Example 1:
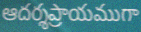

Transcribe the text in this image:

ఆదర్శప్రాయముగా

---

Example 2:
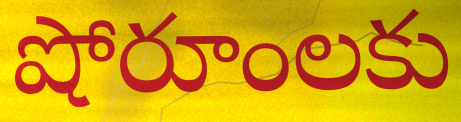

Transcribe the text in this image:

షోరూంలకు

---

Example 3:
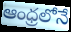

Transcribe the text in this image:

ఆంధ్రలోనే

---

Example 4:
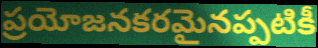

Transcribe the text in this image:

ప్రయోజనకరమైనప్పటికీ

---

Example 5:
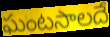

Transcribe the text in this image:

ఘంటసాలదే